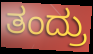
ತಂದ್ರು